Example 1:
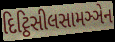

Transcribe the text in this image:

દિટ્ઠિસીલસામઞ્ઞેન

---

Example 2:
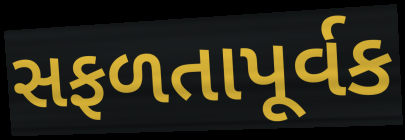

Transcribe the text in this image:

સફળતાપૂર્વક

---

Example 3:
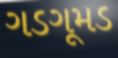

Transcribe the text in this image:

ગડગૂમડ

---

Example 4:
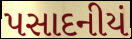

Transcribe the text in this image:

પસાદનીયં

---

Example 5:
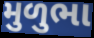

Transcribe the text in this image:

મુળુભા